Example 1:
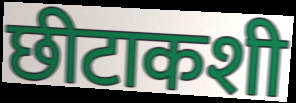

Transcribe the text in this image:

छीटाकशी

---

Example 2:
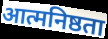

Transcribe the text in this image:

आत्मनिष्ठता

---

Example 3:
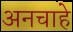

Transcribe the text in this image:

अनचाहे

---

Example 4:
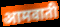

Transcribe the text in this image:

आमवाती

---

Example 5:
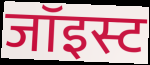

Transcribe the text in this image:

जॉइस्ट